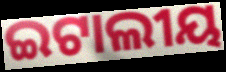
ଇଟାଲୀୟ